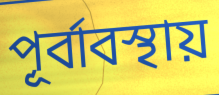
পূর্বাবস্থায়